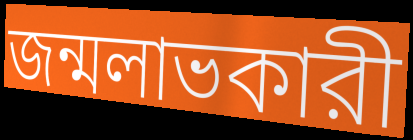
জন্মলাভকারী